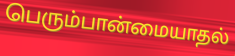
பெரும்பான்மையாதல்